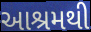
આશ્રમથી